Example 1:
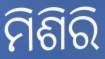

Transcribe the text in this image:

ମିଶିରି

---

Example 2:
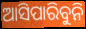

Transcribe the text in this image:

ଆସିପାରିବୁନି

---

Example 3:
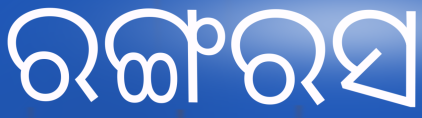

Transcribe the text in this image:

ରଙ୍ଗରସ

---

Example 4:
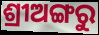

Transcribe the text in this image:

ଶ୍ରୀଅଙ୍ଗରୁ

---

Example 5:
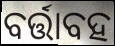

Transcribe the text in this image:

ବର୍ତ୍ତାବହ